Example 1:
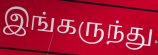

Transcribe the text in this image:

இங்கருந்து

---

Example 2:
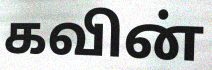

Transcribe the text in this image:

கவின்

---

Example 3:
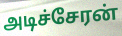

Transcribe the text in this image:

அடிச்சேரன்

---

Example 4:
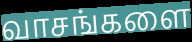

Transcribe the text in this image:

வாசங்களை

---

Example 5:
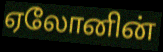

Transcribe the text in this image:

ஏலோனின்